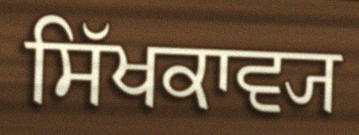
ਸਿੱਖਕਾਵ੍ਯ